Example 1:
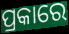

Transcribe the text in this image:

ପ୍ରକାରେ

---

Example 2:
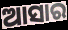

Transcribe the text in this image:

ଆସାର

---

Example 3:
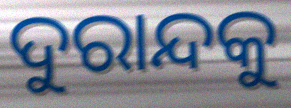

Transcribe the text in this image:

ଦୁରାନ୍ଦକୁ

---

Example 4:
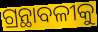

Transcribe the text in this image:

ଗ୍ରନ୍ଥାବଳୀକୁ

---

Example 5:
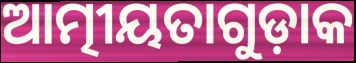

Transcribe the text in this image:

ଆତ୍ମୀୟତାଗୁଡ଼ାକ